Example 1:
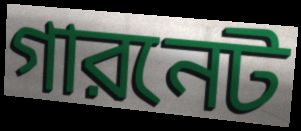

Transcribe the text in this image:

গারনেট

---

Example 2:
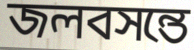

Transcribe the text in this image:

জলবসন্তে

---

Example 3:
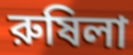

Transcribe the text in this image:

রুষিলা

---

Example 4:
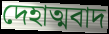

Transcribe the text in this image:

দেহাত্মবাদ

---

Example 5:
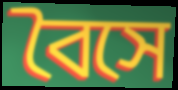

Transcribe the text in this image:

বৈসে